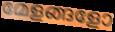
മേളങ്ങളോ